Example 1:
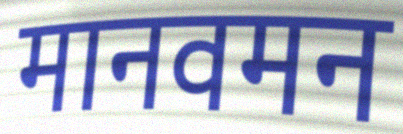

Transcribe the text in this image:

मानवमन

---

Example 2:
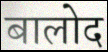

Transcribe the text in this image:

बालोद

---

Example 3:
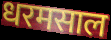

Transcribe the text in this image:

धरमसाल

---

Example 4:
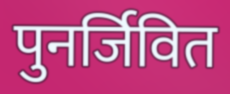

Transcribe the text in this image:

पुनर्जिवित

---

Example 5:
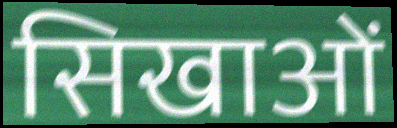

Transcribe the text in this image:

सिखाओं